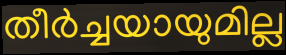
തീർച്ചയായുമില്ല